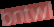
bntwl